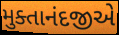
મુક્તાનંદજીએ